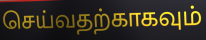
செய்வதற்காகவும்